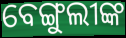
ବେଙ୍ଗୁଲୀଙ୍କ